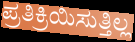
ಪ್ರತಿಕ್ರಿಯಿಸುತ್ತಿಲ್ಲ